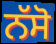
ਨੱਸੋ